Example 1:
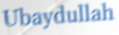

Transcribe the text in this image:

Ubaydullah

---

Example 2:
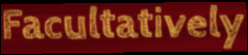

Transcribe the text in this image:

Facultatively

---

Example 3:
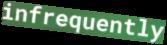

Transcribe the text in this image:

infrequently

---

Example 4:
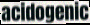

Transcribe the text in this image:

acidogenic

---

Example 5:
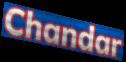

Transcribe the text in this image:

Chandar